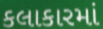
કલાકારમાં